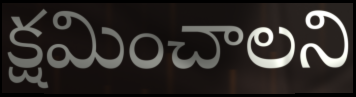
క్షమించాలని